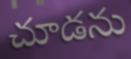
చూడను